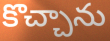
కొచ్చాను